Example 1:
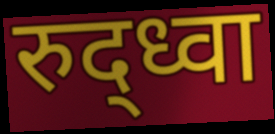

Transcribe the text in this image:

रुद्ध्वा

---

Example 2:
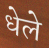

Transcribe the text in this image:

धेले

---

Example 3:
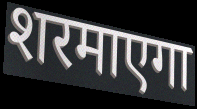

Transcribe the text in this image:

शरमाएगा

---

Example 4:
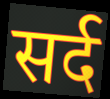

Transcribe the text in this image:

सर्द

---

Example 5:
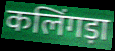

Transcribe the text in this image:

कलिंगड़ा